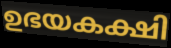
ഉഭയകക്ഷി